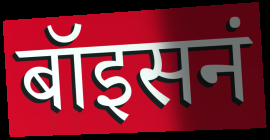
बॉइसनं